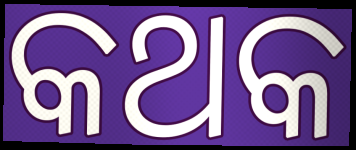
କଥକ